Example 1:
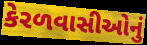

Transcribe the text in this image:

કેરળવાસીઓનું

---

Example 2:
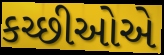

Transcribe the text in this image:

કચ્છીઓએ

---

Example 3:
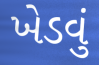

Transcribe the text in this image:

ખેડવું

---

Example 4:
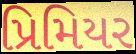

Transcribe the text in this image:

પ્રિમિયર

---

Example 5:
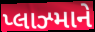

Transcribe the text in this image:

પ્લાઝ્માને